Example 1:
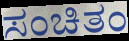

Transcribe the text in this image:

ಸಂಚಿತಂ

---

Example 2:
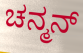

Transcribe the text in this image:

ಚನ್ಮನ್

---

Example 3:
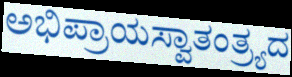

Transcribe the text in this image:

ಅಭಿಪ್ರಾಯಸ್ವಾತಂತ್ರ್ಯದ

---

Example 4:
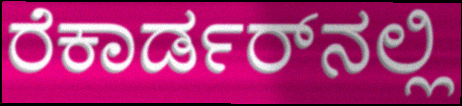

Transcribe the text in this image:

ರೆಕಾರ್ಡರ್‌ನಲ್ಲಿ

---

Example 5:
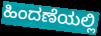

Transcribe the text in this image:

ಹಿಂದಣೆಯಲ್ಲಿ